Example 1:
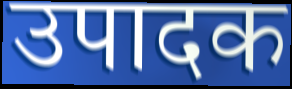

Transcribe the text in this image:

उपादक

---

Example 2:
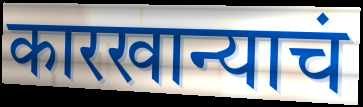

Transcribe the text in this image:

कारखान्याचं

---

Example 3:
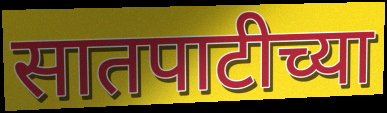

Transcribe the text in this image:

सातपाटीच्या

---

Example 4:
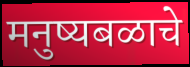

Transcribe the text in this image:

मनुष्यबळाचे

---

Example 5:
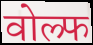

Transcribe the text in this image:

वोल्फ